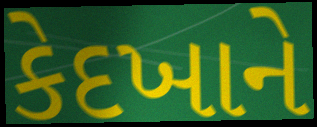
કેદખાને